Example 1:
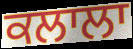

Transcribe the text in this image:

ਕਲਾਲਾ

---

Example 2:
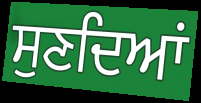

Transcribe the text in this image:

ਸੁਣਦਿਆਂ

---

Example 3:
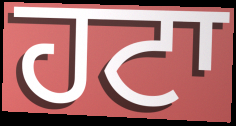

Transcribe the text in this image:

ਹਟਾ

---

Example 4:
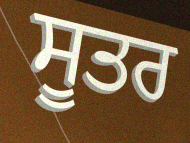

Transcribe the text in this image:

ਸੂਤਰ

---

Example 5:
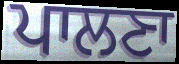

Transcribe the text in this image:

ਪਾਲਣਾ